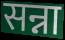
सन्ना